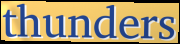
thunders